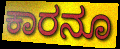
ಕಾರನೂ